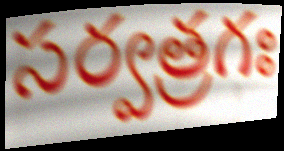
సర్వత్రగః